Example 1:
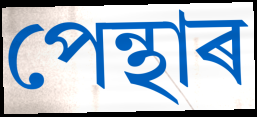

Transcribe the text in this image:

পেন্থাৰ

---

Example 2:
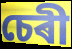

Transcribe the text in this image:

চেৰী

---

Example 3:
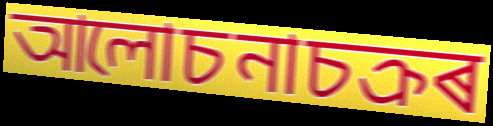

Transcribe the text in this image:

আলোচনাচক্ৰৰ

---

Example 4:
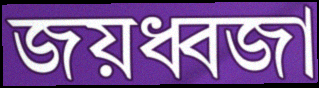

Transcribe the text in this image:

জয়ধ্বজা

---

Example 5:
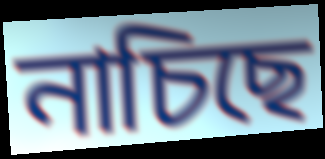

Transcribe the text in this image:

নাচিছে